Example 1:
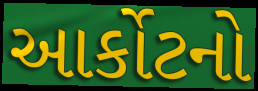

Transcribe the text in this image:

આર્કોટનો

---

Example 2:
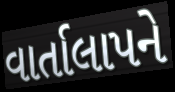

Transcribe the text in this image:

વાર્તાલાપને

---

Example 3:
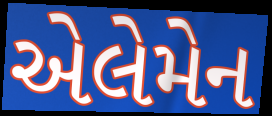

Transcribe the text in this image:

એલેમેન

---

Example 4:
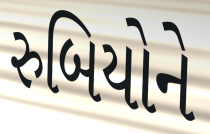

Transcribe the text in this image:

રુબિયોને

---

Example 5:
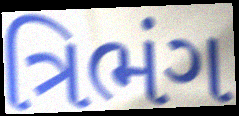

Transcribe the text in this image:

ત્રિભંગ